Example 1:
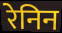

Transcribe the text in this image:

रेनिन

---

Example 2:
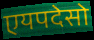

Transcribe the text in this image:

एयपदेसो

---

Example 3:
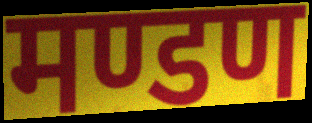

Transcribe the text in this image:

मण्डण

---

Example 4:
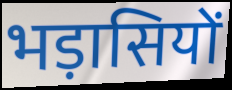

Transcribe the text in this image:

भड़ासियों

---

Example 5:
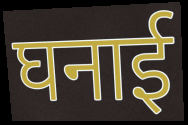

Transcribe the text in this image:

घनाई